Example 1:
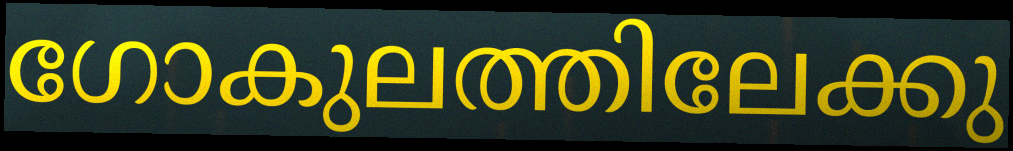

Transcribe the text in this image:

ഗോകുലത്തിലേക്കു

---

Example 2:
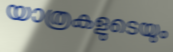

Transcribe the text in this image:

യാത്രകളുടെയും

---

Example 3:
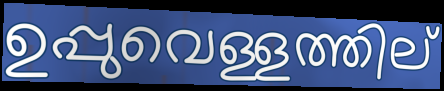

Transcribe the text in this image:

ഉപ്പുവെള്ളത്തില്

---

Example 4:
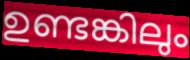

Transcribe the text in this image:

ഉണ്ടങ്കിലും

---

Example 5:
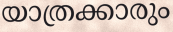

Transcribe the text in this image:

യാത്രക്കാരും